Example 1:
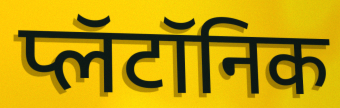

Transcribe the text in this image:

प्लॅटॉनिक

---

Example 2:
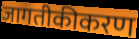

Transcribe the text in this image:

जागतीकीकरण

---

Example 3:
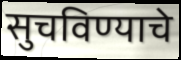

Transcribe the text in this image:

सुचविण्याचे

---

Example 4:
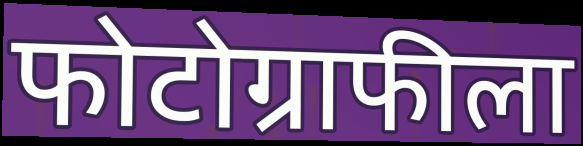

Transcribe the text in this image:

फोटोग्राफीला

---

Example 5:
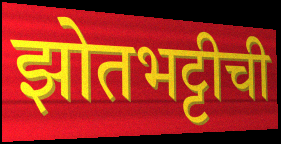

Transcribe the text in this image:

झोतभट्टीची